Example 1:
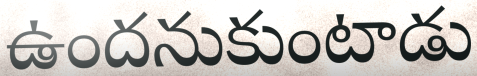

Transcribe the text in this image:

ఉందనుకుంటాడు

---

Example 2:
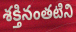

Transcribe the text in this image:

శక్తినంతటిని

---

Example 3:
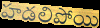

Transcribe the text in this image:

హడలిపోయి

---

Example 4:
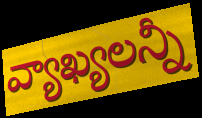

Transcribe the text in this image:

వ్యాఖ్యలన్నీ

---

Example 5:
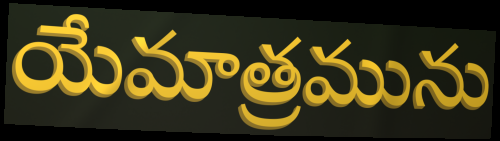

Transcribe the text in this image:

యేమాత్రమును